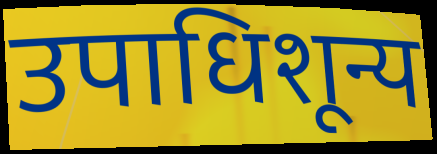
उपाधिशून्य